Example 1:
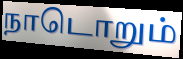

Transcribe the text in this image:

நாடொறும்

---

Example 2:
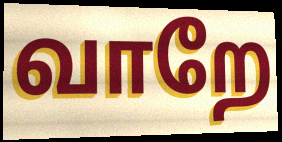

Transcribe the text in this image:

வாறே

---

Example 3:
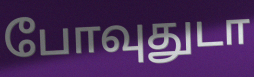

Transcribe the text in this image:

போவுதுடா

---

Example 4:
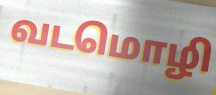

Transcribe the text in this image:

வடமொழி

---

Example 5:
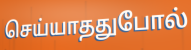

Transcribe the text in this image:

செய்யாததுபோல்